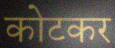
कोटकर